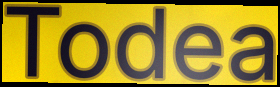
Todea